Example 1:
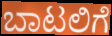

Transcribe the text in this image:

ಬಾಟಲಿಗೆ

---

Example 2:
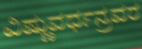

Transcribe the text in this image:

ವಿಷ್ಣುವರ್ಧನ್ರವರ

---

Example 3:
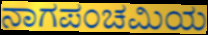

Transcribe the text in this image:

ನಾಗಪಂಚಮಿಯ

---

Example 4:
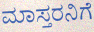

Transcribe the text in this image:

ಮಾಸ್ತರನಿಗೆ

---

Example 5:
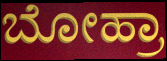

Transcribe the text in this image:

ಬೋಹ್ರಾ